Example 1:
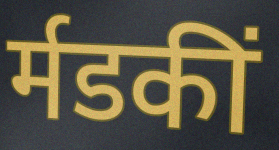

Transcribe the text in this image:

र्मडकीं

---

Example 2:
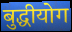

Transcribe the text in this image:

बुद्धीयोग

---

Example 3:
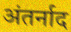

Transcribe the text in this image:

अंतर्नाद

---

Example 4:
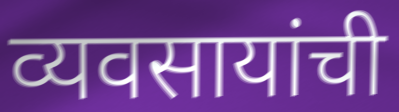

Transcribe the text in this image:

व्यवसायांची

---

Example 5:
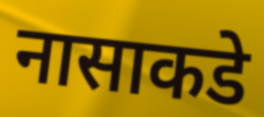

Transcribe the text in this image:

नासाकडे